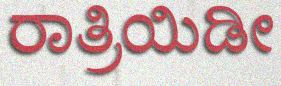
ರಾತ್ರಿಯಿಡೀ